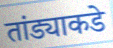
तांड्याकडे